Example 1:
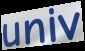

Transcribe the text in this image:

univ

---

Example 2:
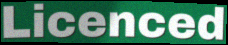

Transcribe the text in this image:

Licenced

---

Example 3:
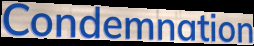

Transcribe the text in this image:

Condemnation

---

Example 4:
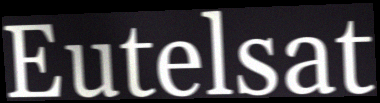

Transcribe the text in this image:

Eutelsat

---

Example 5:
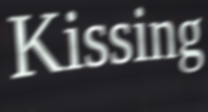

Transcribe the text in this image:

Kissing